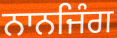
ਨਾਨਜਿੰਗ